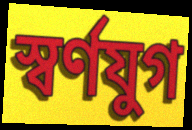
স্বর্ণযুগ